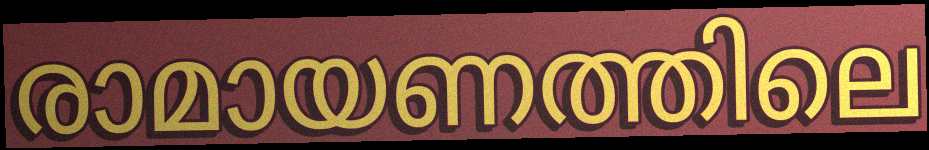
രാമായണത്തിലെ